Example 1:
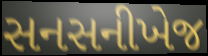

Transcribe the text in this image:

સનસનીખેજ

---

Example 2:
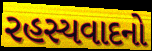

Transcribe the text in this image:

રહસ્યવાદનો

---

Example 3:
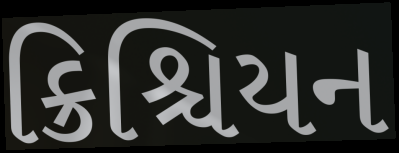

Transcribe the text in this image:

ક્રિશ્ચિયન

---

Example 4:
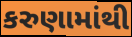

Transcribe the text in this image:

કરુણામાંથી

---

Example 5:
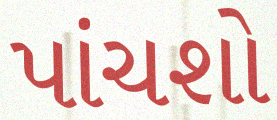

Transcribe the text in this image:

પાંચશો